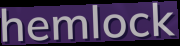
hemlock